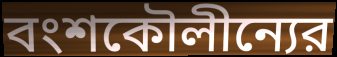
বংশকৌলীন্যের